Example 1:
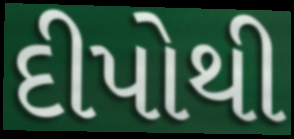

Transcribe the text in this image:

દીપોથી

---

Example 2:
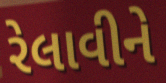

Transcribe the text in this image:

રેલાવીને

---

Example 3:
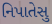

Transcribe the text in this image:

નિપાતેસુ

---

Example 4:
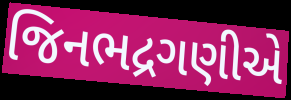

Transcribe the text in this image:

જિનભદ્રગણીએ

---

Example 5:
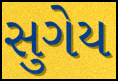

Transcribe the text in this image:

સુગેય